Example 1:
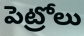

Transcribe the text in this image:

పెట్రోలు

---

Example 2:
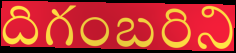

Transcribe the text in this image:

దిగంబరిని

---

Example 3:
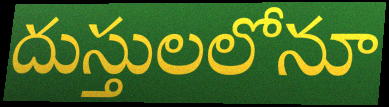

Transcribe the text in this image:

దుస్తులలోనూ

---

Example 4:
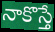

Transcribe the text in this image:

నాకొస్తే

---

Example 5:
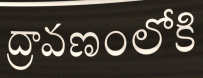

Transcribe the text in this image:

ద్రావణంలోకి